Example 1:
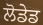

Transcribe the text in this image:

ਲੋਡੇਡ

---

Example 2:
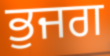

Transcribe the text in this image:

ਭੁਜਗ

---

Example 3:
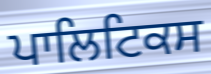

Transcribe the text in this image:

ਪਾਲਿਟਿਕਸ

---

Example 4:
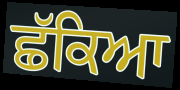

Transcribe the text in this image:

ਛੱਕਿਆ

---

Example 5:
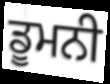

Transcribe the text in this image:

ਡੂਮਨੀ